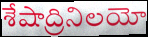
శేషాద్రినిలయో